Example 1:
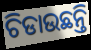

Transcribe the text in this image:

ଚିଡାଉଛନ୍ତି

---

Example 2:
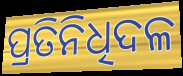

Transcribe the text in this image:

ପ୍ରତିନିଧିଦଳ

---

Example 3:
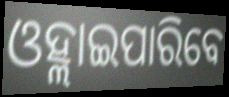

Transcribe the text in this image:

ଓହ୍ଲାଇପାରିବେ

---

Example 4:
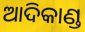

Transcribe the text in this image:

ଆଦିକାଣ୍ଡ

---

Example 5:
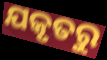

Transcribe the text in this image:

ଯକୃତରୁ